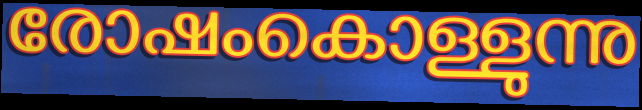
രോഷംകൊള്ളുന്നു